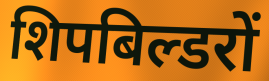
शिपबिल्डरों